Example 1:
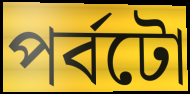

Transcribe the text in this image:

পৰ্বটো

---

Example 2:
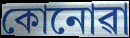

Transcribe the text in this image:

কোনোৱা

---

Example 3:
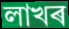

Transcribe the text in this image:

লাখৰ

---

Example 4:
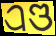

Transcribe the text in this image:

এণ্ড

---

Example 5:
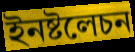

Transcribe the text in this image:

ইনষ্টলেচন